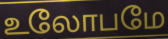
உலோபமே